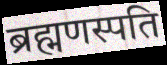
ब्रह्मणस्पति